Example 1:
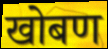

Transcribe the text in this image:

खोबण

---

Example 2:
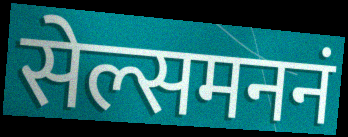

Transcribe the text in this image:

सेल्समननं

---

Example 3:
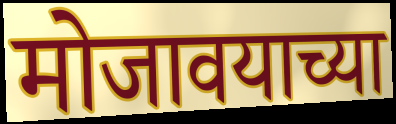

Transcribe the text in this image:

मोजावयाच्या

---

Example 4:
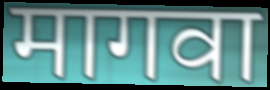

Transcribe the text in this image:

मागवा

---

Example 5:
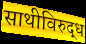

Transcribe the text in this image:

साथीविरुद्ध